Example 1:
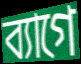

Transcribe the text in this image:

ব্যাগে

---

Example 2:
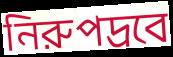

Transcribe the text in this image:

নিরুপদ্রবে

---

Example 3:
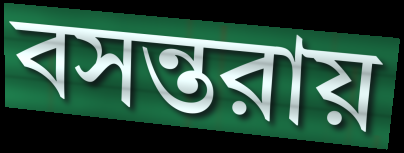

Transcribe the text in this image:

বসন্তরায়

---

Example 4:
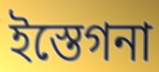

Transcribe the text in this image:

ইস্তেগনা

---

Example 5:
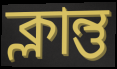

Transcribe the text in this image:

ক্লান্তু